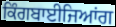
ਕਿੰਗਬਾਈਜਿਆਂਗ